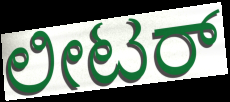
ಲೀಟರ್